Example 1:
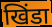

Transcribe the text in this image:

खिंडा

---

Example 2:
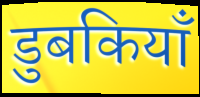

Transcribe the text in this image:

डुबकियाँ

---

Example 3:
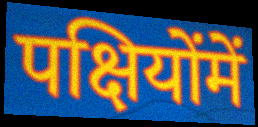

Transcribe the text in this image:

पक्षियोंमें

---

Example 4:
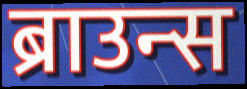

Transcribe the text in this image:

ब्राउन्स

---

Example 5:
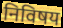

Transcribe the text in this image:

निविषय